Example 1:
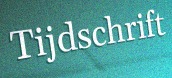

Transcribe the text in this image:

Tijdschrift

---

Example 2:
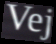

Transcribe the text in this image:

Vej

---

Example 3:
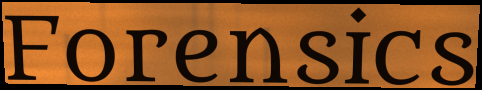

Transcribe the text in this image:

Forensics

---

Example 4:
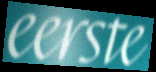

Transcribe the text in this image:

eerste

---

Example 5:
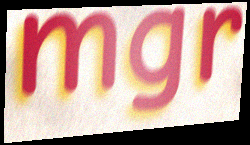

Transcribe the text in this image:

mgr